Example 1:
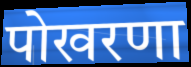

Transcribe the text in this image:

पोखरणा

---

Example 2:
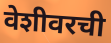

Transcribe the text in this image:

वेशीवरची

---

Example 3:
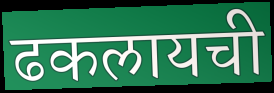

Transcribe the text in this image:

ढकलायची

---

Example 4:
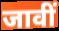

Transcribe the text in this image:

जावीं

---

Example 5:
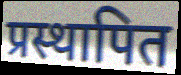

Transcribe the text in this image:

प्रस्थापित